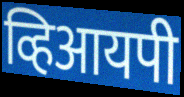
व्हिआयपी